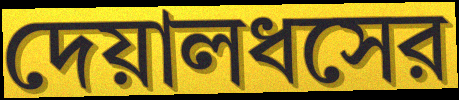
দেয়ালধসের